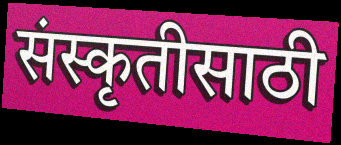
संस्कृतीसाठी